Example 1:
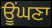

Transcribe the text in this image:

ਊਂਘਣਾ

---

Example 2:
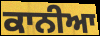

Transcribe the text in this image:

ਕਾਨੀਆ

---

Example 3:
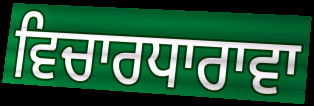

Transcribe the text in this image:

ਵਿਚਾਰਧਾਰਾਵਾ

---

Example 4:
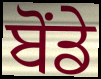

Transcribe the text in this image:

ਬੋਂਡੇ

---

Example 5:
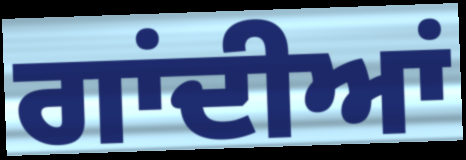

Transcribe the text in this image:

ਗਾਂਦੀਆਂ